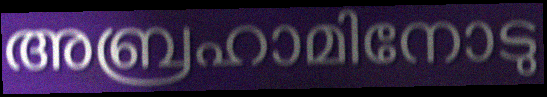
അബ്രഹാമിനോടു